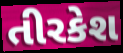
તીરકેશ